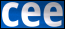
cee